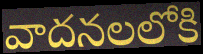
వాదనలలోకి